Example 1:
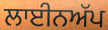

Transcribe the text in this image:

ਲਾਈਨਅੱਪ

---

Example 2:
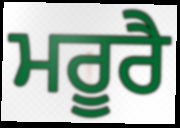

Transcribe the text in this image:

ਮਰੂਰੈ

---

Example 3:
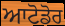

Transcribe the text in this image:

ਆਟੋਡੋਰ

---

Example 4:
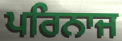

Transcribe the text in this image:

ਪਰਿਨਾਜ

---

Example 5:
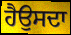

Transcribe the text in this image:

ਹੈਉਸਦਾ